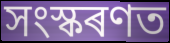
সংস্কৰণত